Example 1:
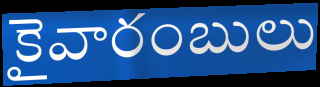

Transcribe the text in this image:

కైవారంబులు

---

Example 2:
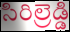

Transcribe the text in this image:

సిరిల్రెడ్డి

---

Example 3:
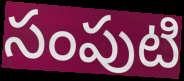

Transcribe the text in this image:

సంపుటి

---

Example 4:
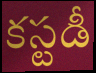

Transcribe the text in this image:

కస్టడీ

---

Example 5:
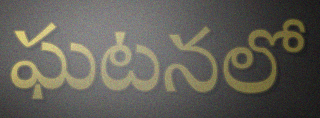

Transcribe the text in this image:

ఘటనలో